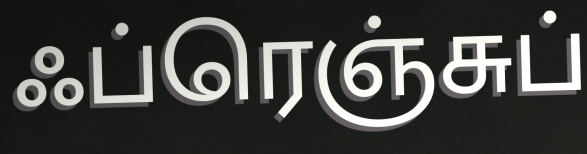
ஃப்ரெஞ்சுப்